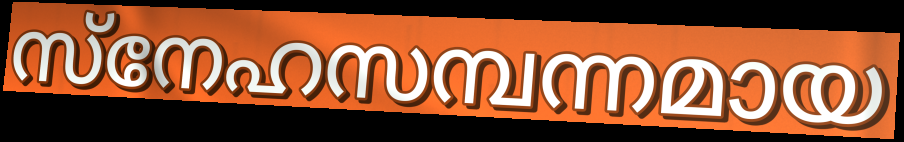
സ്നേഹസമ്പന്നമായ